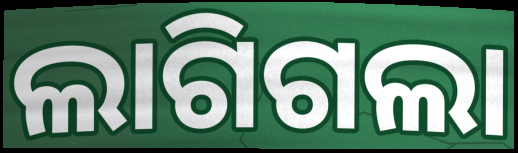
ଲାଗିଗଲା